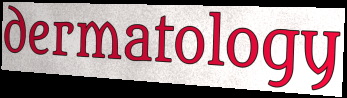
dermatology